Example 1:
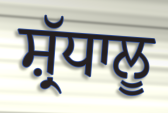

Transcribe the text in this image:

ਸ਼੍ਰੱਧਾਲੂ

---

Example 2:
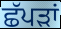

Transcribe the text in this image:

ਛੱਪੜਾਂ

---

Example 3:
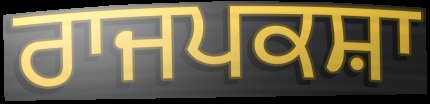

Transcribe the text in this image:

ਰਾਜਪਕਸ਼ਾ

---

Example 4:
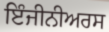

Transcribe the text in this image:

ਇੰਜੀਨੀਅਰਸ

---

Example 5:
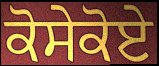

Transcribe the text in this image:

ਕੋਸੇਕੋਏ